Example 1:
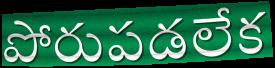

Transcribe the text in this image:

పోరుపడలేక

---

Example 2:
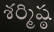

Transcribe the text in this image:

శర్మిష్ఠ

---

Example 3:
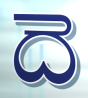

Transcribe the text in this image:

దె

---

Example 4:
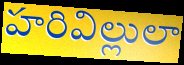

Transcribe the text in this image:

హరివిల్లులా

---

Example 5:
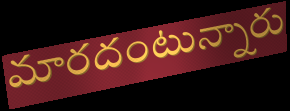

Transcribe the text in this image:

మారదంటున్నారు